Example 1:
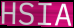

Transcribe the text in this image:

HSIA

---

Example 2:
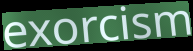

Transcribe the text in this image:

exorcism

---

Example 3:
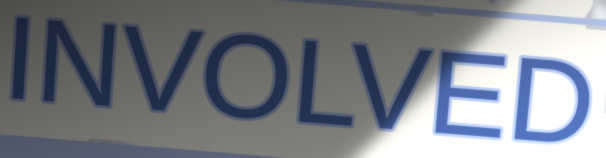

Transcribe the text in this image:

INVOLVED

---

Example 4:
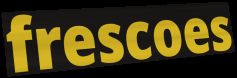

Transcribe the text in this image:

frescoes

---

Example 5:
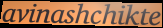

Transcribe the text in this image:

avinashchikte